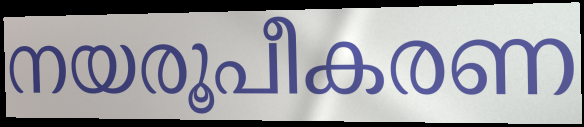
നയരൂപീകരണ